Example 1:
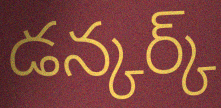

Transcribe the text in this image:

డన్కర్క్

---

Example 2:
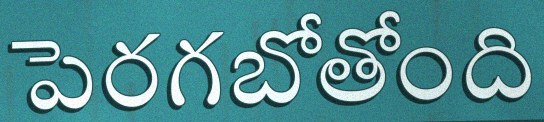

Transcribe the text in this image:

పెరగబోతోంది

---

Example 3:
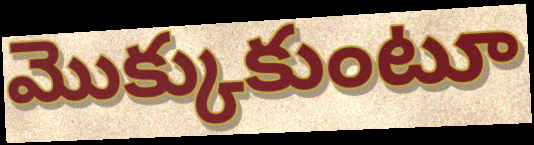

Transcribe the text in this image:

మొక్కుకుంటూ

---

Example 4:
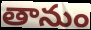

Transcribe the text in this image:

తానుం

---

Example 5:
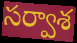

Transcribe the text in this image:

సర్వాశ